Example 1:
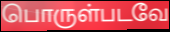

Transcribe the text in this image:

பொருள்படவே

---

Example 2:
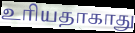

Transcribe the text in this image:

உரியதாகாது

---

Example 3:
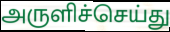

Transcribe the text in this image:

அருளிச்செய்து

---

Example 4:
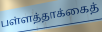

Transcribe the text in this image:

பள்ளத்தாக்கைத்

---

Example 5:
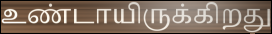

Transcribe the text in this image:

உண்டாயிருக்கிறது